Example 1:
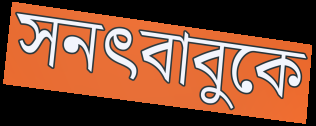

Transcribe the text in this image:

সনৎবাবুকে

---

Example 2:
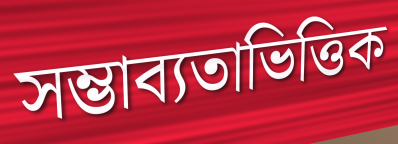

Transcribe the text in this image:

সম্ভাব্যতাভিত্তিক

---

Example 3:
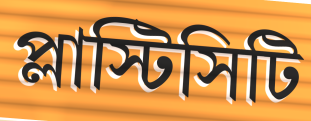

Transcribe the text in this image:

প্লাস্টিসিটি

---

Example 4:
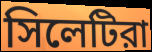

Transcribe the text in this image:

সিলেটিরা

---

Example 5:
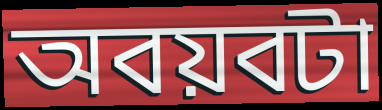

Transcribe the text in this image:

অবয়বটা